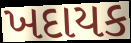
ખદાયક